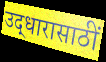
उद्धारासाठीं